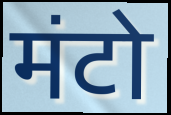
मंटो